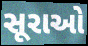
સૂરાઓ